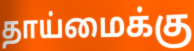
தாய்மைக்கு